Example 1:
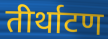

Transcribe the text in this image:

तीर्थाटण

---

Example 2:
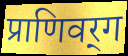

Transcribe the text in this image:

प्राणिवर्ग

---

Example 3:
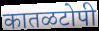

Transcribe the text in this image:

कातळटोपी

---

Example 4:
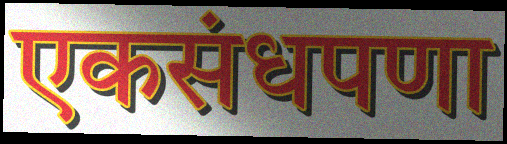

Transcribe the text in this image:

एकसंधपणा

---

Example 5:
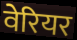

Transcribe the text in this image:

वेरियर